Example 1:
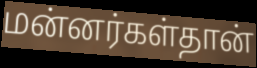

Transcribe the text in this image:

மன்னர்கள்தான்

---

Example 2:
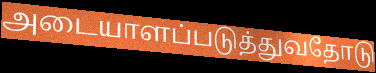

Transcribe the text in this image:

அடையாளப்படுத்துவதோடு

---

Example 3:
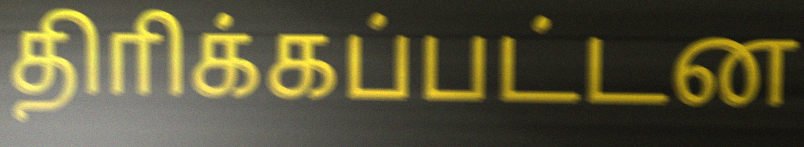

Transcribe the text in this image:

திரிக்கப்பட்டன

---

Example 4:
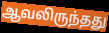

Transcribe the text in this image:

ஆவலிருந்தது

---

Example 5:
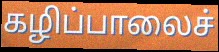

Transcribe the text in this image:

கழிப்பாலைச்